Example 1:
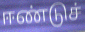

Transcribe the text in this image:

ஈண்டுச்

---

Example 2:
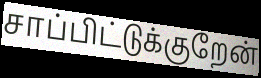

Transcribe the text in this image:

சாப்பிட்டுக்குறேன்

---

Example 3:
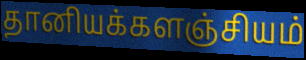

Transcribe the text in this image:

தானியக்களஞ்சியம்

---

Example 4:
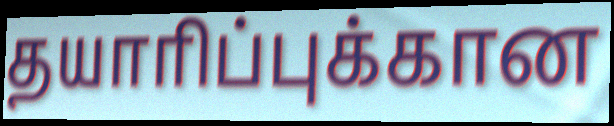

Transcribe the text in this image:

தயாரிப்புக்கான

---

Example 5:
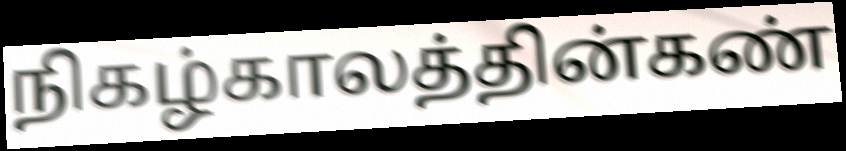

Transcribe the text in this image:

நிகழ்காலத்தின்கண்